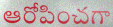
ఆరోపించగా